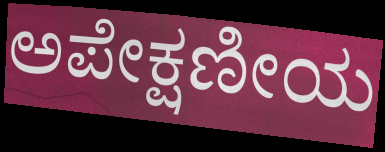
ಅಪೇಕ್ಷಣೀಯ